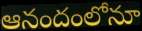
ఆనందంలోనూ